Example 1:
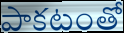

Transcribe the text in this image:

పాకటంతో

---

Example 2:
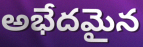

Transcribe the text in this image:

అభేదమైన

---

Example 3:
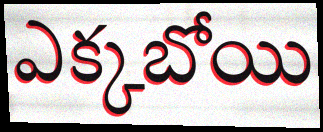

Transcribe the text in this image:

ఎక్కబోయి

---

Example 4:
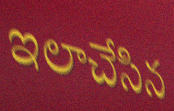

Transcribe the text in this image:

ఇలాచేసిన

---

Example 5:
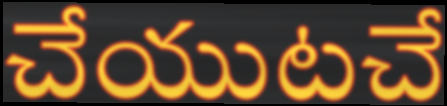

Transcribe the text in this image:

చేయుటచే